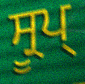
ਸ੍ਰੂਪ੍